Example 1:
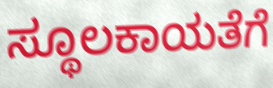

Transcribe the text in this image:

ಸ್ಥೂಲಕಾಯತೆಗೆ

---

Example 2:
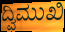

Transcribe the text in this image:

ದ್ವಿಮುಖಿ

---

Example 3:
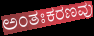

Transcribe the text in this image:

ಅಂತಃಕರಣವು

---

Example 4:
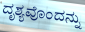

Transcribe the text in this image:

ದೃಶ್ಯವೊಂದನ್ನು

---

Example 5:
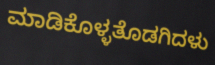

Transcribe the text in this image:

ಮಾಡಿಕೊಳ್ಳತೊಡಗಿದಳು